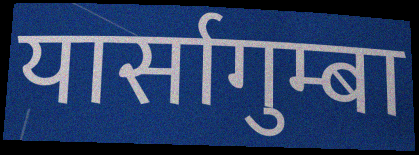
यार्सागुम्बा